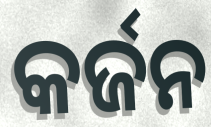
କର୍ଜନ